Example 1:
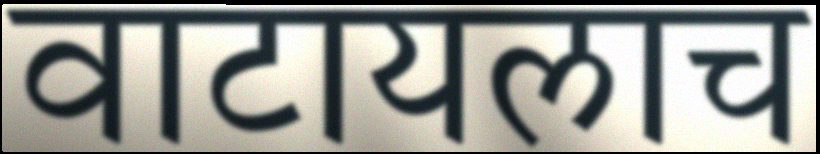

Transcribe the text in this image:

वाटायलाच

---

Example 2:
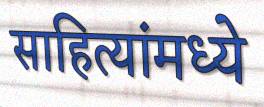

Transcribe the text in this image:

साहित्यांमध्ये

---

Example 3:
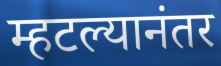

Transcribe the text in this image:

म्हटल्यानंतर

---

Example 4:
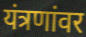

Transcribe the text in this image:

यंत्रणांवर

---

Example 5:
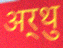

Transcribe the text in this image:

अर्थु